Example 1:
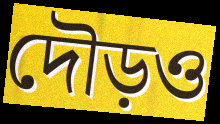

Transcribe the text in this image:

দৌড়ও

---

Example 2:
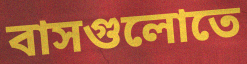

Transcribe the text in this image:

বাসগুলোতে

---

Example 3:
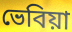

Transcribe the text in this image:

ভেবিয়া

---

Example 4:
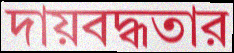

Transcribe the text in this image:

দায়বদ্ধতার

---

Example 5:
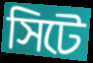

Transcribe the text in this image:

সিটে